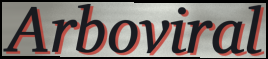
Arboviral